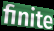
finite